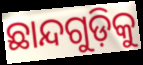
ଛାନ୍ଦଗୁଡ଼ିକୁ